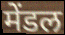
मेंडल